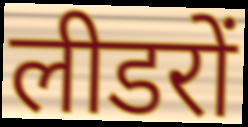
लीडरों